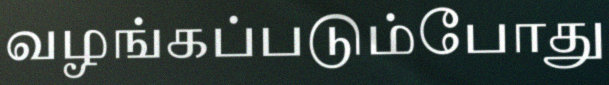
வழங்கப்படும்போது